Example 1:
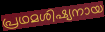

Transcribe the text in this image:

പ്രഥമശിഷ്യനായ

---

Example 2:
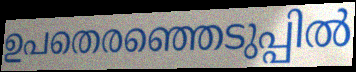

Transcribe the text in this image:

ഉപതെരഞ്ഞെടുപ്പിൽ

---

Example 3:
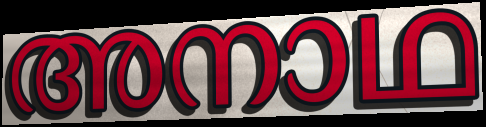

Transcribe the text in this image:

അനാഥ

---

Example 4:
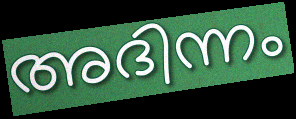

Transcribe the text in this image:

അദിന്നം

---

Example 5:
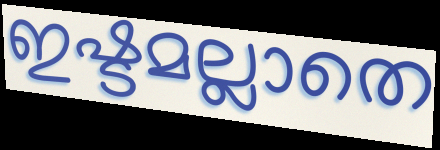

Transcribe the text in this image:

ഇഷ്ടമല്ലാതെ